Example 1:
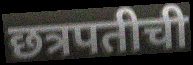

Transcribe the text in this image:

छत्रपतीची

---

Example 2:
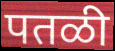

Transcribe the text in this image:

पतळी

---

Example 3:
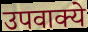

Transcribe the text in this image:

उपवाक्ये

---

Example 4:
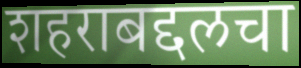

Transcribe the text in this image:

शहराबद्दलचा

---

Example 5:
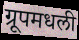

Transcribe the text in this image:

ग्रूपमधली